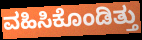
ವಹಿಸಿಕೊಂಡಿತ್ತು